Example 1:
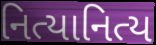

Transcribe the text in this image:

નિત્યાનિત્ય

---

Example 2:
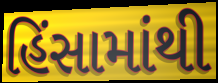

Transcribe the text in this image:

હિંસામાંથી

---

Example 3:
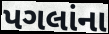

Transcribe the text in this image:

પગલાંના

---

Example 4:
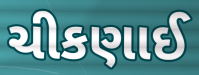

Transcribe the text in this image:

ચીકણાઈ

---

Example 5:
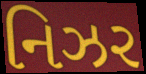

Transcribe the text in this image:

નિઝર